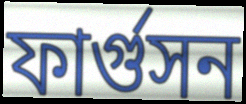
ফার্গুসন